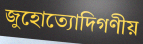
জুহোত্যোদিগণীয়